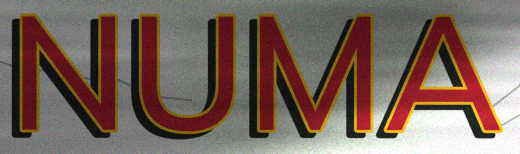
NUMA